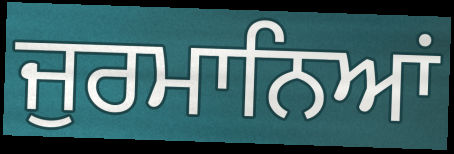
ਜੁਰਮਾਨਿਆਂ